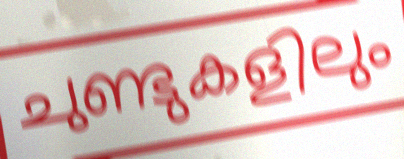
ചുണ്ടുകളിലും